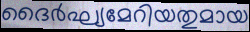
ദൈർഘ്യമേറിയതുമായ